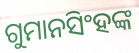
ଗୁମାନସିଂହଙ୍କ